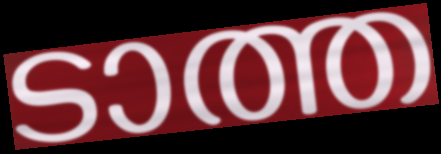
ടാത്ത